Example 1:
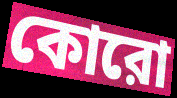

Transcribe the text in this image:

কোরো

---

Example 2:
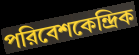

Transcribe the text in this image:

পরিবেশকেন্দ্রিক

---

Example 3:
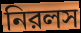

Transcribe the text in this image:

নিরলস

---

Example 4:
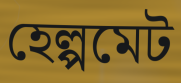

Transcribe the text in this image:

হেল্পমেট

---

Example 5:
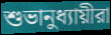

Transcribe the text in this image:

শুভানুধ্যায়ীরা